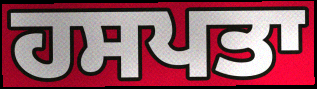
ਹਸਪਤਾ